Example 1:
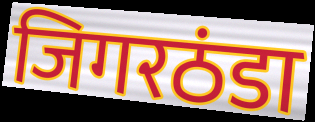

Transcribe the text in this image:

जिगरठंडा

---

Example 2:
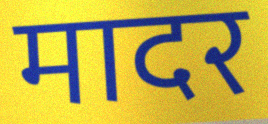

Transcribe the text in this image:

मादर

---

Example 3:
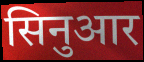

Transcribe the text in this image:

सिनुआर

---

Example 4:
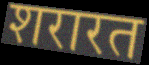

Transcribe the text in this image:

शरारत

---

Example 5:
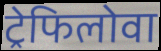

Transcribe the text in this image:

ट्रेफिलोवा